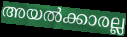
അയൽക്കാരല്ല